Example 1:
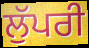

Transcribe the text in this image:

ਲੁੱਪਰੀ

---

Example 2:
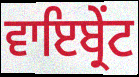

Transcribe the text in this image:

ਵਾਇਬ੍ਰੇਂਟ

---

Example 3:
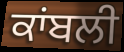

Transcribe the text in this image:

ਕਾਂਬਲੀ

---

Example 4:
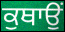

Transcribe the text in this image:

ਕੁਥਾਉਂ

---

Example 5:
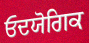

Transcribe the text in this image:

ਓਦਯੋਗਿਕ